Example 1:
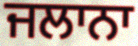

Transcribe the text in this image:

ਜਲਾਨਾ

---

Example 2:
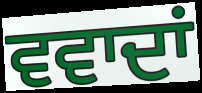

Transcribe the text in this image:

ਵਵਾਦਾਂ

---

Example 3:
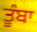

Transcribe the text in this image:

ਤੂੰਬਾ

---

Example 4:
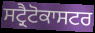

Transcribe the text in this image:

ਸਟ੍ਰੈਟੋਕਾਸਟਰ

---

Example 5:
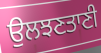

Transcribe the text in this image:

ਉਲਝਣਤਾਣੀ